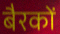
बैरकों